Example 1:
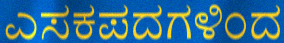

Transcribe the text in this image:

ಎಸಕಪದಗಳಿಂದ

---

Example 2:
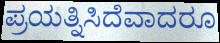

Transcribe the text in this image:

ಪ್ರಯತ್ನಿಸಿದೆವಾದರೂ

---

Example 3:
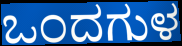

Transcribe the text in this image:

ಒಂದಗುಳ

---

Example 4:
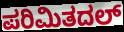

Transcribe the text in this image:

ಪರಿಮಿತದಲ್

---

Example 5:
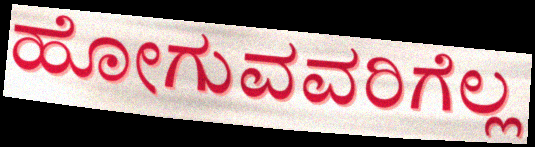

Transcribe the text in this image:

ಹೋಗುವವರಿಗೆಲ್ಲ